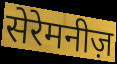
सेरेमनीज़